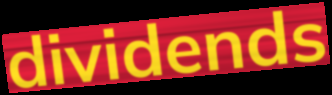
dividends